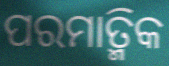
ପରମାତ୍ମିକ